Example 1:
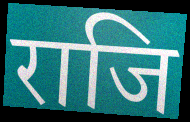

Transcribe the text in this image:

राजि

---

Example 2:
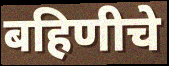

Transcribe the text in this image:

बहिणीचे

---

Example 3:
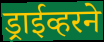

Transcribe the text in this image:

ड्राईव्हरने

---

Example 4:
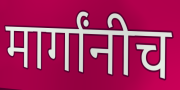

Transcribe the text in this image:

मार्गांनीच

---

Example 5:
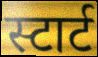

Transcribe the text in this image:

स्टार्ट